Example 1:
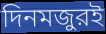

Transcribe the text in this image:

দিনমজুরই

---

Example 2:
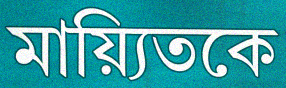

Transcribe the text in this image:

মায়্যিতকে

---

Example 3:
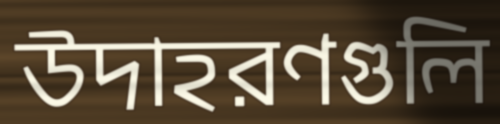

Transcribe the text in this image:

উদাহরণগুলি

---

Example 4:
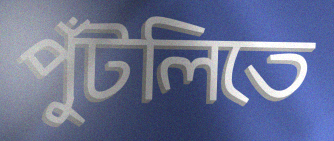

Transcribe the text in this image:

পুঁটলিতে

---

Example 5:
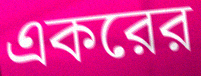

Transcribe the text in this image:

একরের